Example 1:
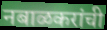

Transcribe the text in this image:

नबाळकरांची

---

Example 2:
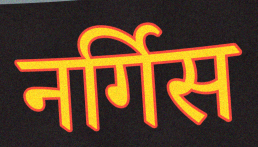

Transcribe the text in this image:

नर्गिस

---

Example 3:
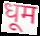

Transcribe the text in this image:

धूम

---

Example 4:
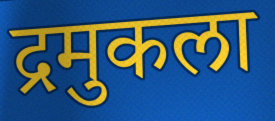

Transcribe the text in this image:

द्रमुकला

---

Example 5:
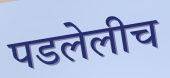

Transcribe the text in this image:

पडलेलीच